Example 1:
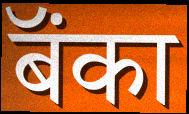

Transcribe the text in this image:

बॅंका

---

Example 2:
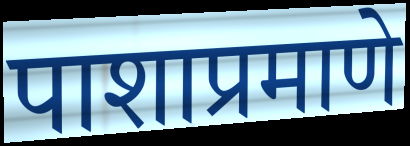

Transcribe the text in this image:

पाशाप्रमाणे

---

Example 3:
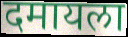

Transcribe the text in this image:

दमायला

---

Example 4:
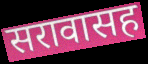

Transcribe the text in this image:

सरावासह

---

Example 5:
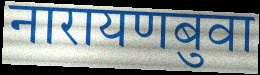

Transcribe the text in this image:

नारायणबुवा